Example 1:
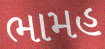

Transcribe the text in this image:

ભામહ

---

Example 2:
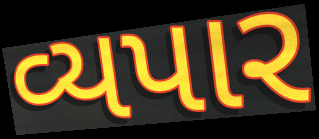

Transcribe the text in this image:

વ્યપાર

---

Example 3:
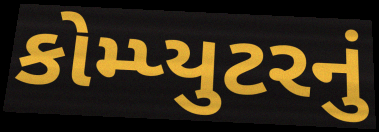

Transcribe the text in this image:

કોમ્પ્યુટરનું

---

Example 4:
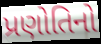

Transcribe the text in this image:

પ્રણોતિનો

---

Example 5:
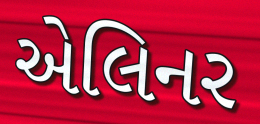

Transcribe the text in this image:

એલિનર